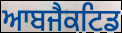
ਆਬਜੈਕਟਿਡ